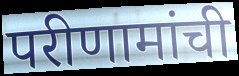
परीणामांची